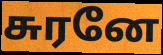
சுரனே